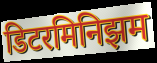
डिटरमिनिझम